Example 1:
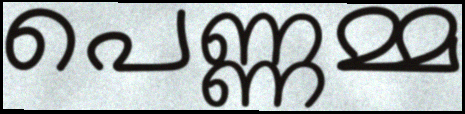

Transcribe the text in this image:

പെണ്ണമ്മ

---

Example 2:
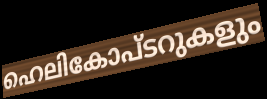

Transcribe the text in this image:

ഹെലികോപ്ടറുകളും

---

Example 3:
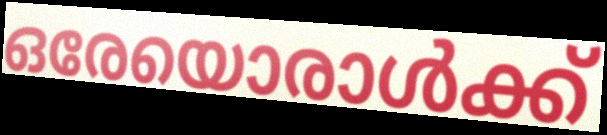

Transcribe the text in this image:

ഒരേയൊരാൾക്ക്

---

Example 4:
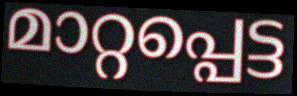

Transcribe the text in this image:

മാറ്റപ്പെട്ട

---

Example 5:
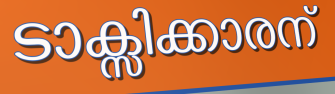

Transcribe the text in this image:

ടാക്സിക്കാരന്